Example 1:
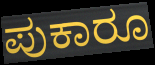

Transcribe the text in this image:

ಪುಕಾರೂ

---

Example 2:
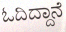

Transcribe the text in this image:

ಓದಿದ್ದಾನೆ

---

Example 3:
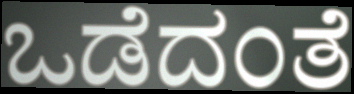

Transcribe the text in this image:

ಒಡೆದಂತೆ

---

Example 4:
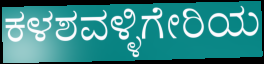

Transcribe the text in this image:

ಕಳಶವಳ್ಳಿಗೇರಿಯ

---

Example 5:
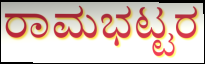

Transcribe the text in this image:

ರಾಮಭಟ್ಟರ